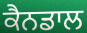
ਕੈਨਡਾਲ